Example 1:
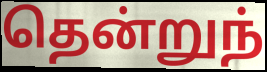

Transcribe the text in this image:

தென்றுந்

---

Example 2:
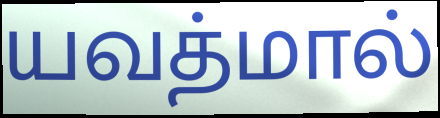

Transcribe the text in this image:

யவத்மால்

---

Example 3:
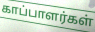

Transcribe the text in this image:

காப்பாளர்கள்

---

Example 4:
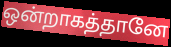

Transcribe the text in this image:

ஒன்றாகத்தானே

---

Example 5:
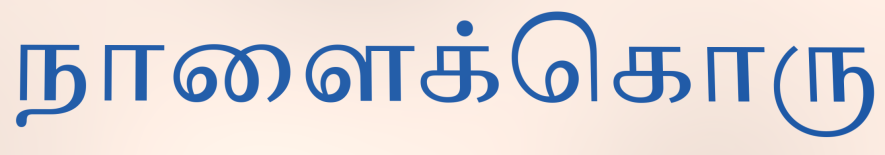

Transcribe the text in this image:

நாளைக்கொரு